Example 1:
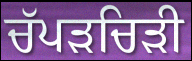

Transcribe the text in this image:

ਚੱਪੜਚਿੜੀ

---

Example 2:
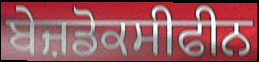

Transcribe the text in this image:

ਬੇਜ਼ਡੋਕਸੀਫੀਨ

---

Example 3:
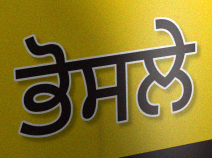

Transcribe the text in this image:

ਭੋਸਲੇ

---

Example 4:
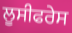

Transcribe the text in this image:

ਲੂਸੀਫਰੇਸ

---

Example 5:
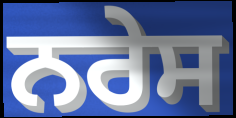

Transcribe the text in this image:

ਨਰੇਸ